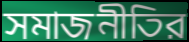
সমাজনীতির